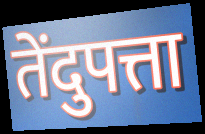
तेंदुपत्ता